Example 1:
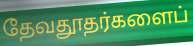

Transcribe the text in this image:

தேவதூதர்களைப்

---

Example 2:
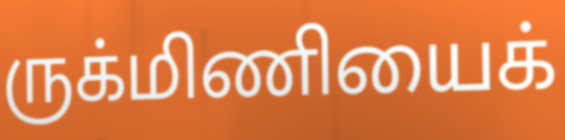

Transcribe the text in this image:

ருக்மிணியைக்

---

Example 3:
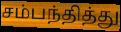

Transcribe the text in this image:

சம்பந்தித்து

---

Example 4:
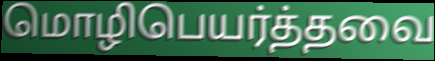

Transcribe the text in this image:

மொழிபெயர்த்தவை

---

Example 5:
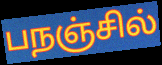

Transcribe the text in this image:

பநஞ்சில்